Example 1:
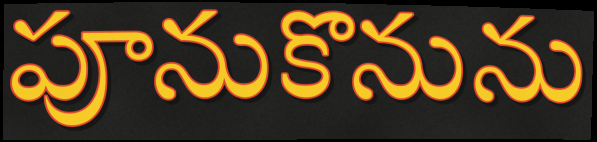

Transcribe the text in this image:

పూనుకొనును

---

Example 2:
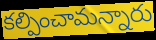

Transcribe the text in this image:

కల్పించామన్నారు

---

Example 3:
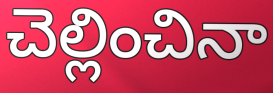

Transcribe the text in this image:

చెల్లించినా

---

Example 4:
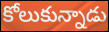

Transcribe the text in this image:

కోలుకున్నాడు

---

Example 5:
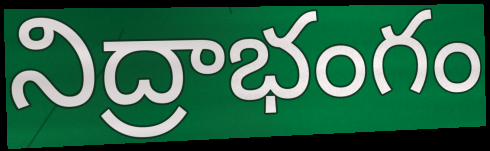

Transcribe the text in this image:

నిద్రాభంగం